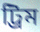
ট্ৰিম